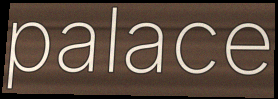
palace